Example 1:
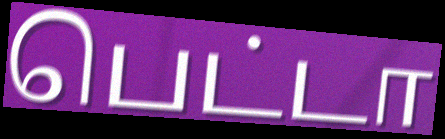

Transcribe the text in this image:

பெட்டா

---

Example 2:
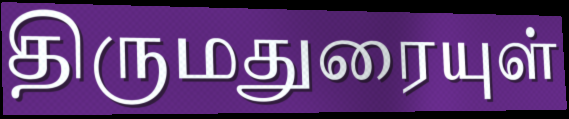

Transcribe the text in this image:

திருமதுரையுள்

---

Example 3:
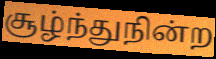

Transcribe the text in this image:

சூழ்ந்துநின்ற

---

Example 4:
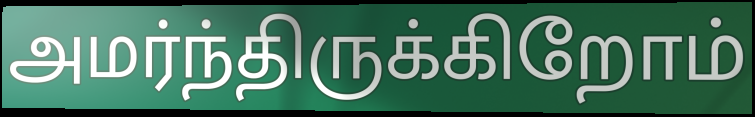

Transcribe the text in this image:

அமர்ந்திருக்கிறோம்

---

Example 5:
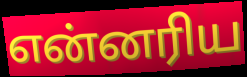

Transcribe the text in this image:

என்னரிய